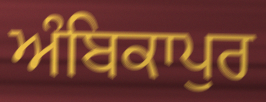
ਅੰਬਿਕਾਪੁਰ